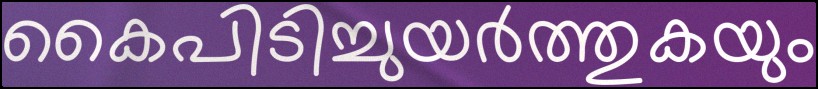
കൈപിടിച്ചുയർത്തുകയും